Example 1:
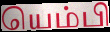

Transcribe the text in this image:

யெம்பி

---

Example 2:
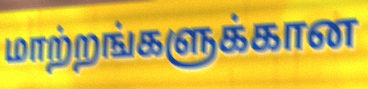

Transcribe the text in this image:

மாற்றங்களுக்கான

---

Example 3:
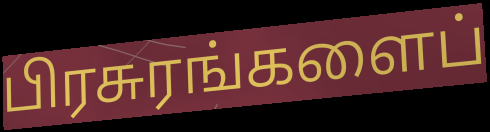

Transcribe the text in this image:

பிரசுரங்களைப்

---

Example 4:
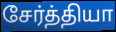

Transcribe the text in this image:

சேர்த்தியா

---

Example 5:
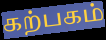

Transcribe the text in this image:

கற்பகம்